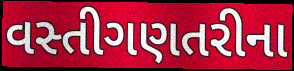
વસ્તીગણતરીના